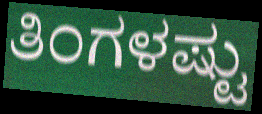
ತಿಂಗಳಷ್ಟು